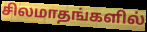
சிலமாதங்களில்